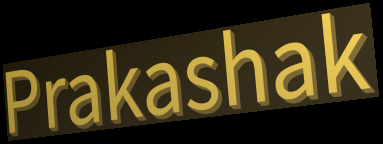
Prakashak